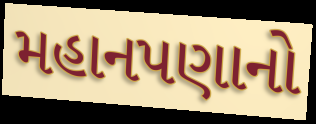
મહાનપણાનો